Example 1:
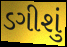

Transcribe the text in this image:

ડગીશું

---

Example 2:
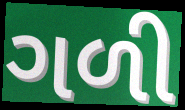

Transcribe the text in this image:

ગળી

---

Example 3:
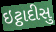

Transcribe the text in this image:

ઇટ્ઠાદીસુ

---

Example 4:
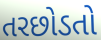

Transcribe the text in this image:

તરછોડતો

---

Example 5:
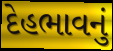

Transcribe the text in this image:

દેહભાવનું